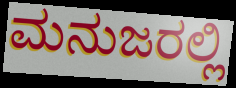
ಮನುಜರಲ್ಲಿ